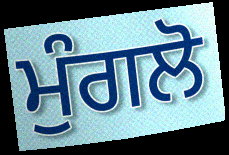
ਮੁੰਗਲੋ